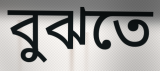
বুঝতে